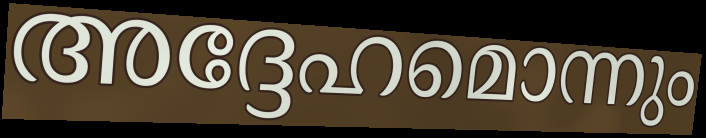
അദ്ദേഹമൊന്നും